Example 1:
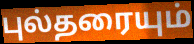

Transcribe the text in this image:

புல்தரையும்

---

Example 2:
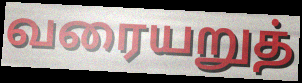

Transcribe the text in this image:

வரையறுத்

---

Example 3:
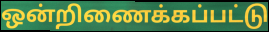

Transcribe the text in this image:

ஒன்றிணைக்கப்பட்டு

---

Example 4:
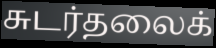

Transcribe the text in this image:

சுடர்தலைக்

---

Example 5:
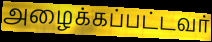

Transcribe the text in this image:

அழைக்கப்பட்டவர்